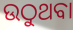
ଉଠୁଥବା